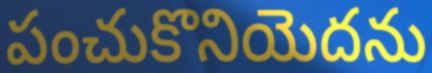
పంచుకొనియెదను